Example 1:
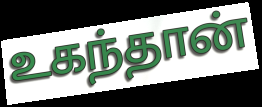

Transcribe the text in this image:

உகந்தான்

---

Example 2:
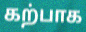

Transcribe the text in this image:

கற்பாக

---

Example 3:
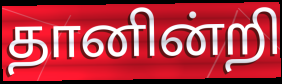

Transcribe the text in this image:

தானின்றி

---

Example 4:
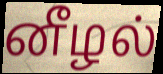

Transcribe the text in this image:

னீழல்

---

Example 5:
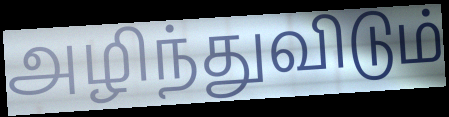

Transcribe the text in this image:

அழிந்துவிடும்